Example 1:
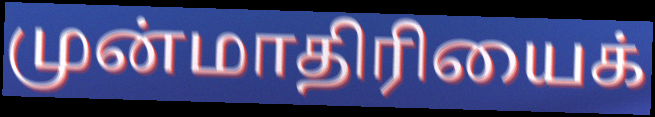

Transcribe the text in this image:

முன்மாதிரியைக்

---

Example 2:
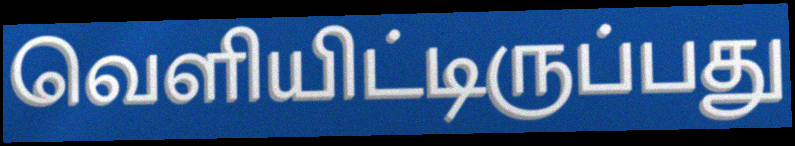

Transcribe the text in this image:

வெளியிட்டிருப்பது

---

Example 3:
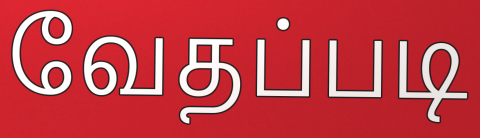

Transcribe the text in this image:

வேதப்படி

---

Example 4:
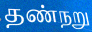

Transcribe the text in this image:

தண்நறு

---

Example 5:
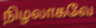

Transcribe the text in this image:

நிழலாகவே